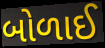
બોળાઈ